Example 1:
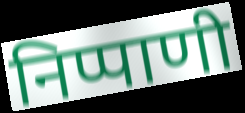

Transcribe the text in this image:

निप्पाणी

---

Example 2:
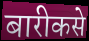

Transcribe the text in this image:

बारीकसे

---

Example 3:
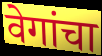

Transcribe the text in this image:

वेगांचा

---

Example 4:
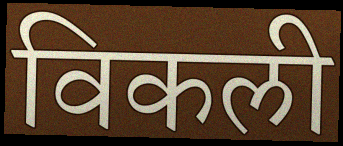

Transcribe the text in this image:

विकली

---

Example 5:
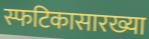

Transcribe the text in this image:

स्फटिकासारख्या